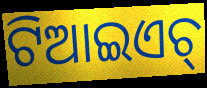
ଟିଆଇଏଚ୍